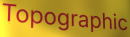
Topographic